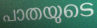
പാതയുടെ